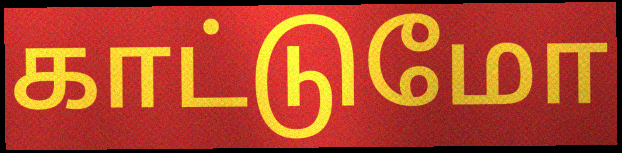
காட்டுமோ